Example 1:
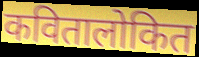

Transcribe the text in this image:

कवितालोकित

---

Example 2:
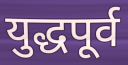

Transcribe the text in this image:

युद्धपूर्व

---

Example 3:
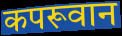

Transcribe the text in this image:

कपरूवान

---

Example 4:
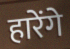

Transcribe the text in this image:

हारेंगे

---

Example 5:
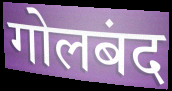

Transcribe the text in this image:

गोलबंद